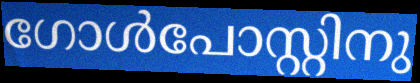
ഗോൾപോസ്റ്റിനു